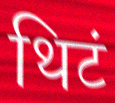
थिटं